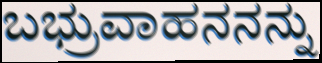
ಬಭ್ರುವಾಹನನನ್ನು